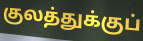
குலத்துக்குப்